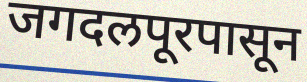
जगदलपूरपासून